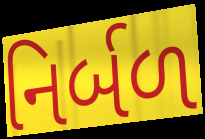
નિર્બળ